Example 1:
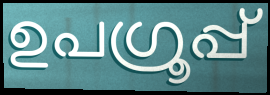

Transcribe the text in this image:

ഉപഗ്രൂപ്പ്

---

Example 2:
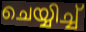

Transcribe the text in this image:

ചെയ്യിച്ച്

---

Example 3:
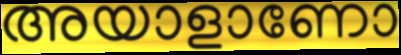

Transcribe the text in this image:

അയാളാണോ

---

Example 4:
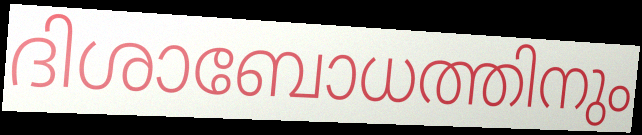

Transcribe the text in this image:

ദിശാബോധത്തിനും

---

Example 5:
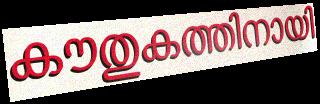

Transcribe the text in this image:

കൗതുകത്തിനായി